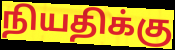
நியதிக்கு